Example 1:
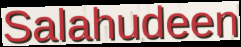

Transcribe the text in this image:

Salahudeen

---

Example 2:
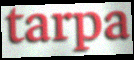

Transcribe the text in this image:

tarpa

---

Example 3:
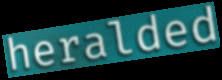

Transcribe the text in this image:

heralded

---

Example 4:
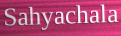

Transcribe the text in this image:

Sahyachala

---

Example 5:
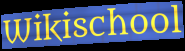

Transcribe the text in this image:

Wikischool